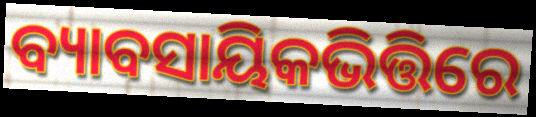
ବ୍ୟାବସାୟିକଭିତ୍ତିରେ